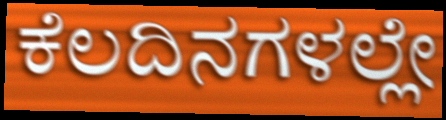
ಕೆಲದಿನಗಳಲ್ಲೇ